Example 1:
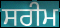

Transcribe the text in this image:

ਸਰੀਮ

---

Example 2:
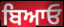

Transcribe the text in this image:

ਬਿਆਓ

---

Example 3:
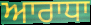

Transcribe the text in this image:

ਆਰਾਧਾ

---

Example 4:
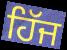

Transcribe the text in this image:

ਹਿੱਜ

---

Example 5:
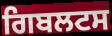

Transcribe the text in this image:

ਗਿਬਲਟਸ